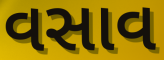
વસાવ